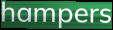
hampers